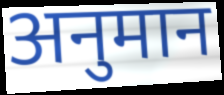
अनुमान